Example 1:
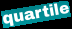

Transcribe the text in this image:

quartile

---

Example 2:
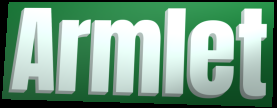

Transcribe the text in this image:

Armlet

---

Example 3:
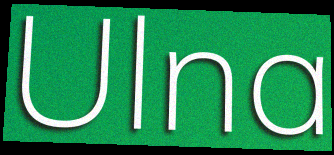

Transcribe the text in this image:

Ulna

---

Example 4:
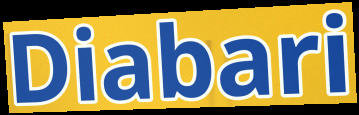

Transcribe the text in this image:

Diabari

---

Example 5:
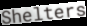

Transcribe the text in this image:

Shelters